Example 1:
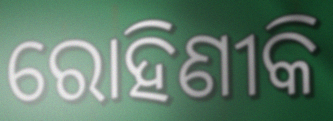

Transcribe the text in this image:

ରୋହିଣୀକି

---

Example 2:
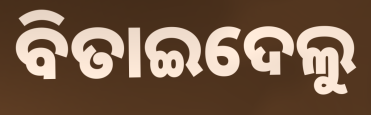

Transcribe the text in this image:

ବିତାଇଦେଲୁ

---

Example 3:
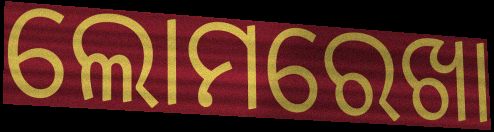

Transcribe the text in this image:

ଲୋମରେଖା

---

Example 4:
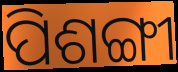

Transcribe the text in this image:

ପିଶଙ୍ଗୀ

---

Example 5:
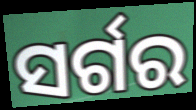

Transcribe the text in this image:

ସର୍ଗର